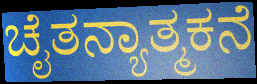
ಚೈತನ್ಯಾತ್ಮಕನೆ